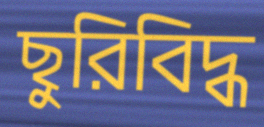
ছুরিবিদ্ধ